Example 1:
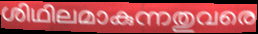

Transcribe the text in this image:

ശിഥിലമാകുന്നതുവരെ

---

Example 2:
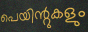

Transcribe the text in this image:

പെയിന്റുകളും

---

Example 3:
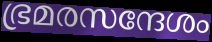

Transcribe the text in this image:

ഭ്രമരസന്ദേശം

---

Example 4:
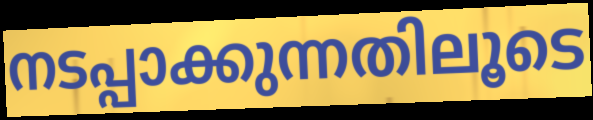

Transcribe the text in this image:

നടപ്പാക്കുന്നതിലൂടെ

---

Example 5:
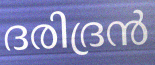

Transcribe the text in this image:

ദരിദ്രൻ